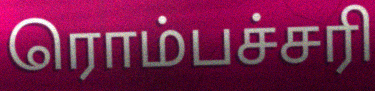
ரொம்பச்சரி